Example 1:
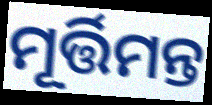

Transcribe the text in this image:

ମୂର୍ତ୍ତିମନ୍ତ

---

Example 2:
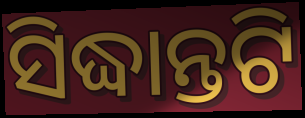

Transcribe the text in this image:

ସିଦ୍ଧାନ୍ତଟି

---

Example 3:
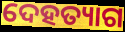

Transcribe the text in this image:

ଦେହତ୍ୟାଗ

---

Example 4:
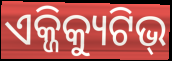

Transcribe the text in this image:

ଏକ୍ଜିକ୍ୟୁଟିଭ୍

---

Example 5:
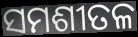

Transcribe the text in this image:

ସମଶୀତଳ